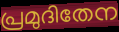
പ്രമുദിതേന